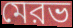
মেরভ